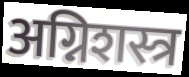
अग्निशस्त्र